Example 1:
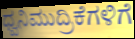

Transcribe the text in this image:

ಧ್ವನಿಮುದ್ರಿಕೆಗಳಿಗೆ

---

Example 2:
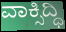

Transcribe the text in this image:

ವಾಕ್ಸಿದ್ಧಿ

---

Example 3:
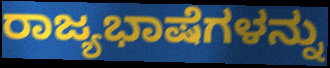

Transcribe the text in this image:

ರಾಜ್ಯಭಾಷೆಗಳನ್ನು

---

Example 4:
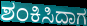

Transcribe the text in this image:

ಶಂಕಿಸಿದಾಗ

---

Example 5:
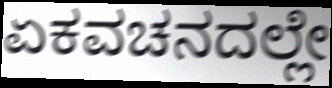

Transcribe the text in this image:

ಏಕವಚನದಲ್ಲೇ